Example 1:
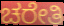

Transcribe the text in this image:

ಚರೇತಿ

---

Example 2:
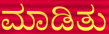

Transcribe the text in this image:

ಮಾಡಿತು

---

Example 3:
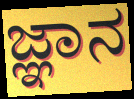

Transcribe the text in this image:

ಜ್ಞಾನ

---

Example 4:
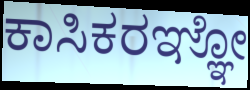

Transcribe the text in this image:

ಕಾಸಿಕರಞ್ಞೋ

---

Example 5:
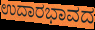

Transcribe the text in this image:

ಉದಾರಭಾವದ